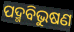
ପଦ୍ମବିଭୁଷଣ